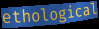
ethological